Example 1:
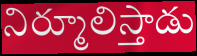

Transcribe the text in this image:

నిర్మూలిస్తాడు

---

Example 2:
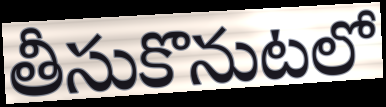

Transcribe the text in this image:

తీసుకొనుటలో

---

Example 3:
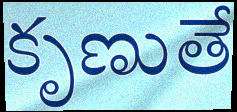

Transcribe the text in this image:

కృణుతే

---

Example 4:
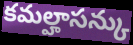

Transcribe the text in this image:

కమల్హాసన్కు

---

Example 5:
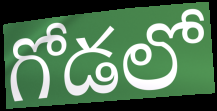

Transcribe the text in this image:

గోడలో